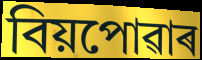
বিয়পোৱাৰ